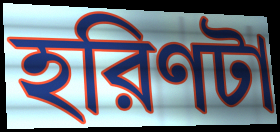
হরিণটা